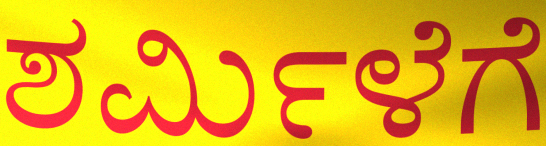
ಶರ್ಮಿಳೆಗೆ